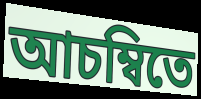
আচম্বিতে